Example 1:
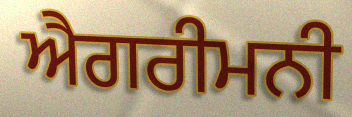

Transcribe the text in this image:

ਐਗਰੀਮਨੀ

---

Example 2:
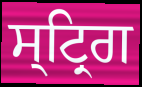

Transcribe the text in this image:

ਸ੍ਟ੍ਰਿਗ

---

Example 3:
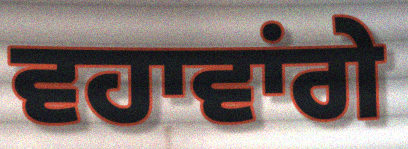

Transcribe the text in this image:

ਵਹਾਵਾਂਗੇ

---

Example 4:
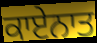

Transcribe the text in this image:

ਕਾਏਨਾਤ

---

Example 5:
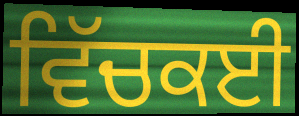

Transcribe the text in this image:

ਵਿੱਚਕਈ